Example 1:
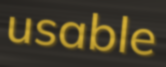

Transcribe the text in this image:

usable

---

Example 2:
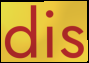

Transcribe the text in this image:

dis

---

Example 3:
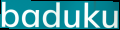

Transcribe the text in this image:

baduku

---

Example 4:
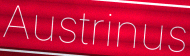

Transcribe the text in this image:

Austrinus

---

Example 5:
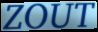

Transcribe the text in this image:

ZOUT